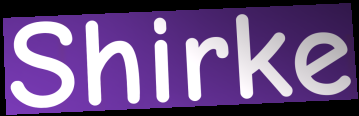
Shirke